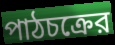
পাঠচক্রের